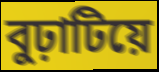
বুঢ়াটিয়ে